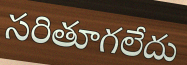
సరితూగలేదు